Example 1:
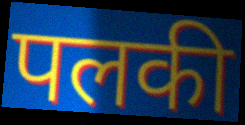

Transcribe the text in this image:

पलकी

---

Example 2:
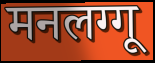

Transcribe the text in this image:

मनलग्गू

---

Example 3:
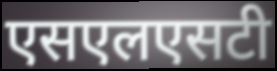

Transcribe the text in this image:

एसएलएसटी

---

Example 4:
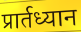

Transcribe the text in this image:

प्रार्तध्यान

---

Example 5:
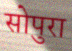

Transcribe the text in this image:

सोपुरा